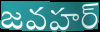
జవహర్